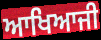
ਆਖਿਆਜੀ